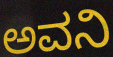
ಅವನಿ